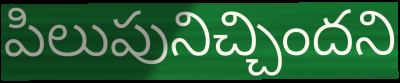
పిలుపునిచ్చిందని